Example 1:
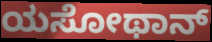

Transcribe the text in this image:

ಯಸೋಥಾನ್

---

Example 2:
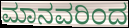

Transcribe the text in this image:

ಮಾನವರಿಂದ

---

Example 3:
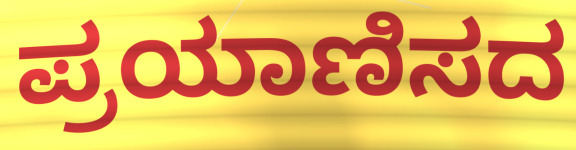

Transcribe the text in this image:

ಪ್ರಯಾಣಿಸದ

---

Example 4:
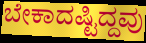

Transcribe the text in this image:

ಬೇಕಾದಷ್ಟಿದ್ದವು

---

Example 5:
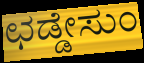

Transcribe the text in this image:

ಛಡ್ಡೇಸುಂ